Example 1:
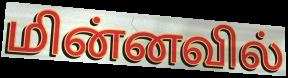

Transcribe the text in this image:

மின்னவில்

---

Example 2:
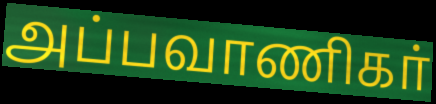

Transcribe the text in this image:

அப்பவாணிகர்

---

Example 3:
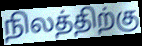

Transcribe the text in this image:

நிலத்திற்கு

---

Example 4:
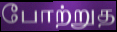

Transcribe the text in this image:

போற்றுத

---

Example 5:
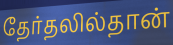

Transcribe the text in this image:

தேர்தலில்தான்